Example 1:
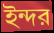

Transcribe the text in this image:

ইন্দর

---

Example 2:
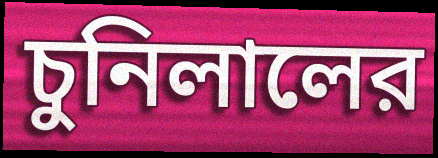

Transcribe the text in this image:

চুনিলালের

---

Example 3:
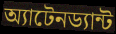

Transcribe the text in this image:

অ্যাটেনড্যান্ট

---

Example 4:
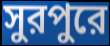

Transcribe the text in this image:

সুরপুরে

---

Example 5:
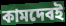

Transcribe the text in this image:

কামদেবই